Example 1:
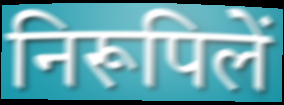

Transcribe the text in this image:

निरूपिलें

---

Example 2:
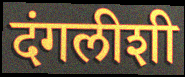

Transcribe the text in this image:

दंगलीशी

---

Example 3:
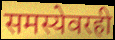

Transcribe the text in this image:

समस्येवरही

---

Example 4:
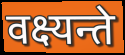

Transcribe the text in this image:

वक्ष्यन्ते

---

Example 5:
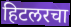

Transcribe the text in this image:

हिटलरचा